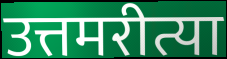
उत्तमरीत्या